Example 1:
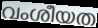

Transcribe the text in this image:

വംശീയത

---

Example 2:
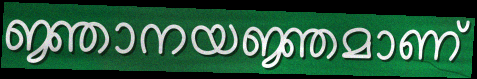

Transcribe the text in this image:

ജ്ഞാനയജ്ഞമാണ്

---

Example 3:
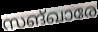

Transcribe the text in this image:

സങ്ഖാരേ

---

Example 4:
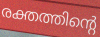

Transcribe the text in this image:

രക്തത്തിന്റെ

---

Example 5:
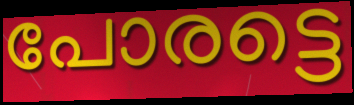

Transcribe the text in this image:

പോരട്ടെ